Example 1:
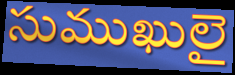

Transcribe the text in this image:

సుముఖులై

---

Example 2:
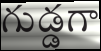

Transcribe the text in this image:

గుడ్డగా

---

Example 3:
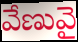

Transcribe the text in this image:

వేణువై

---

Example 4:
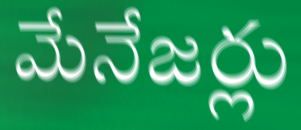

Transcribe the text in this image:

మేనేజర్లు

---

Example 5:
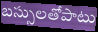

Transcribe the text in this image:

బస్సులతోపాటు